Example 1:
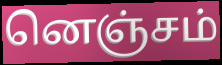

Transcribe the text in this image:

னெஞ்சம்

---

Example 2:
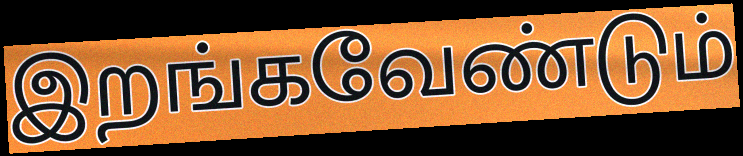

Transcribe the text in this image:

இறங்கவேண்டும்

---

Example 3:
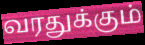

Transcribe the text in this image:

வரதுக்கும்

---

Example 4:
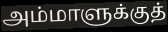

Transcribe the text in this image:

அம்மாளுக்குத்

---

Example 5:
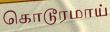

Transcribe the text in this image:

கொடூரமாய்